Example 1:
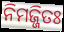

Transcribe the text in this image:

ନିମଜ୍ଜିତଃ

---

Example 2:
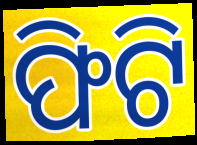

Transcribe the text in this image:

ଫିଟି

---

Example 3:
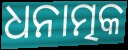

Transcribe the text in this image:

ଧନାତ୍ମକ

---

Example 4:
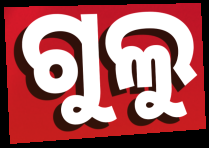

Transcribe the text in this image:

ଗୁଲୁ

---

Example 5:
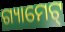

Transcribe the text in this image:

ଗ୍ୟାମେଟ୍